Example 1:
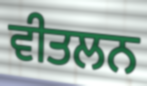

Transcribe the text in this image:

ਵੀਤਲਨ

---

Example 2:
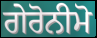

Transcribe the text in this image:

ਗੇਰੋਨੀਮੋ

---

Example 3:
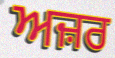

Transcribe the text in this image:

ਅਜ਼ਰ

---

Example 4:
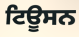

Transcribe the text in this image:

ਟਿਊਸਨ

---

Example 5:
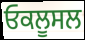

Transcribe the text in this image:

ਓਕਲੂਸਲ